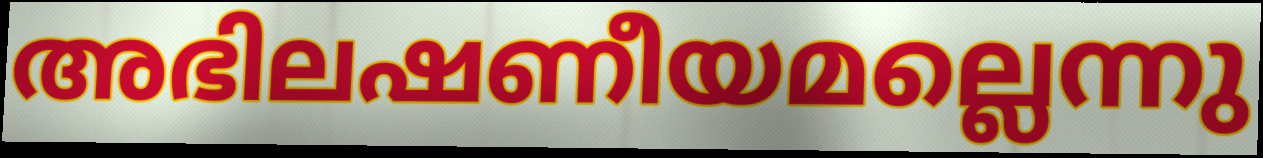
അഭിലഷണീയമല്ലെന്നു